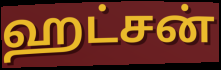
ஹட்சன்